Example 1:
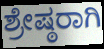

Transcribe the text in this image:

ಶ್ರೇಷ್ಠರಾಗಿ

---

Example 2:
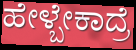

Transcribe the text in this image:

ಹೇಳ್ಬೇಕಾದ್ರೆ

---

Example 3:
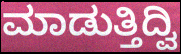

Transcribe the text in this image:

ಮಾಡುತ್ತಿದ್ವಿ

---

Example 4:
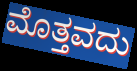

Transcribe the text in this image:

ಮೊತ್ತವದು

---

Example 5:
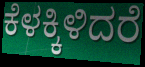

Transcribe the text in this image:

ಕೆಳಕ್ಕಿಳಿದರೆ